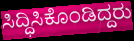
ಸಿದ್ಧಿಸಿಕೊಂಡಿದ್ದರು